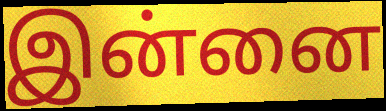
இன்னை